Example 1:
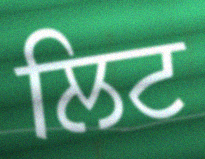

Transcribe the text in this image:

ਲਿਟ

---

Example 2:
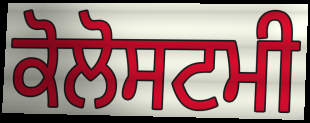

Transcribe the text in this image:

ਕੋਲੋਸਟਮੀ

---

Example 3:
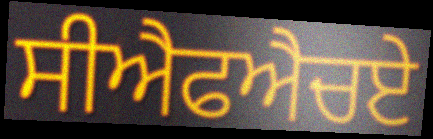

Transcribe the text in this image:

ਸੀਐਫਐਚਏ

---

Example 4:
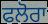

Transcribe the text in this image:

ਫਲੋਰਾ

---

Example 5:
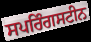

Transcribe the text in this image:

ਸਪਰਿੰਗਸਟੀਨ